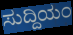
ಸುದ್ದಿಯಂ